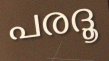
പരദൂ